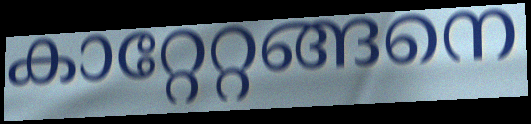
കാറ്റേറ്റങ്ങനെ